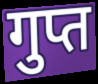
गुप्त